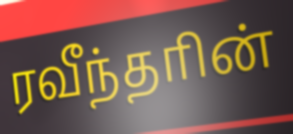
ரவீந்தரின்